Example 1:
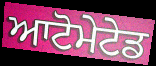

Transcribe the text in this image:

ਆਟੋਮੇਟੇਡ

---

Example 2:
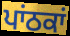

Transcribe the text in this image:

ਪਾਂਠਕਾਂ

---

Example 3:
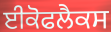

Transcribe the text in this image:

ਈਕੋਫਲੈਕਸ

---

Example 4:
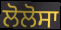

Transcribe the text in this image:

ਲੋਲੋਸਾ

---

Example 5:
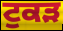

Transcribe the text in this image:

ਟੁਕੜ